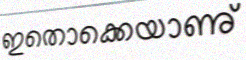
ഇതൊക്കെയാണു്